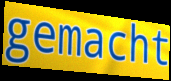
gemacht